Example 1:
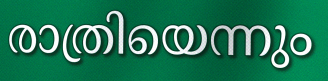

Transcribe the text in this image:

രാത്രിയെന്നും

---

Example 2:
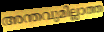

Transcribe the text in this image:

അന്തവുമില്ലാത്ത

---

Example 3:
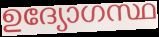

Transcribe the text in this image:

ഉദ്യോഗസ്ഥ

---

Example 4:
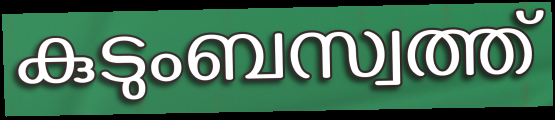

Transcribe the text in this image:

കുടുംബസ്വത്ത്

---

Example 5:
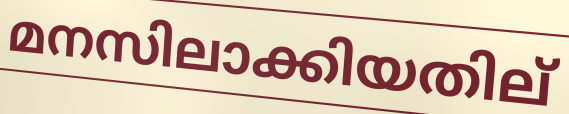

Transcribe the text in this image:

മനസിലാക്കിയതില്